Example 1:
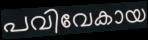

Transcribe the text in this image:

പവിവേകായ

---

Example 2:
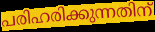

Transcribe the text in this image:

പരിഹരിക്കുന്നതിന്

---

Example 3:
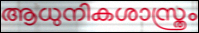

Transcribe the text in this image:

ആധുനികശാസ്ത്രം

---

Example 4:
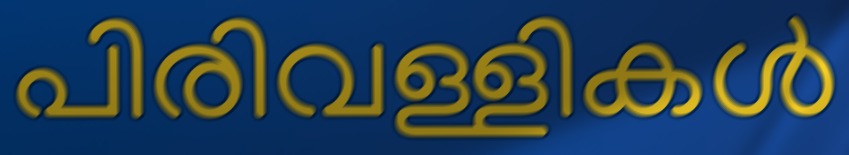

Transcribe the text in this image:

പിരിവള്ളികൾ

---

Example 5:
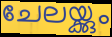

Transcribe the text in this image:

ചേലയ്ക്കും